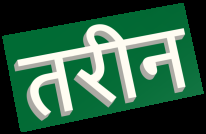
तरीन